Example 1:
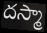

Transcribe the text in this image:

దస్మా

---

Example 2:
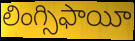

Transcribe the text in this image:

లింగ్సిఫాయీ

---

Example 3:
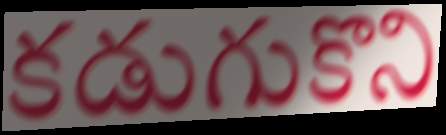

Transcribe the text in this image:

కడుగుకొని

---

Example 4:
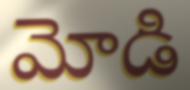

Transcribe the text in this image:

మోడి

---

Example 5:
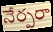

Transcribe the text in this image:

నేర్పరా